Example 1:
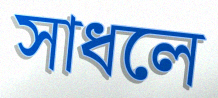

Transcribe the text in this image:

সাধলে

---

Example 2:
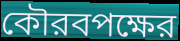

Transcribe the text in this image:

কৌরবপক্ষের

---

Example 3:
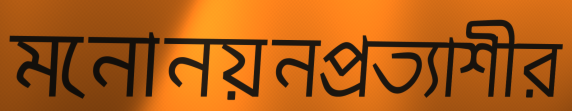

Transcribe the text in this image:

মনোনয়নপ্রত্যাশীর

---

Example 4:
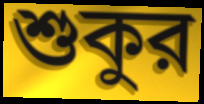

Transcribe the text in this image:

শুকুর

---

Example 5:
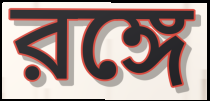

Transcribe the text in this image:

রঙ্গে